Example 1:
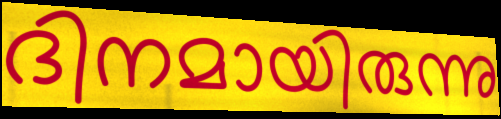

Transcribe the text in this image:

ദിനമായിരുന്നു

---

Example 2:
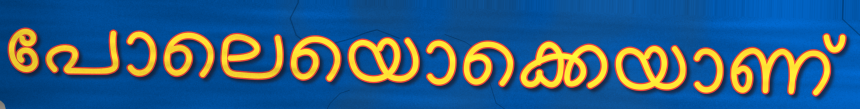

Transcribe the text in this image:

പോലെയൊക്കെയാണ്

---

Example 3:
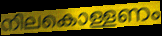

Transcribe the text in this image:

നിലകൊള്ളണം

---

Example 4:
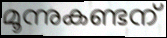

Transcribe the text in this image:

മൂന്നുകണ്ടന്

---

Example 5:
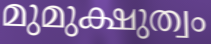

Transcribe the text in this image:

മുമുക്ഷുത്വം